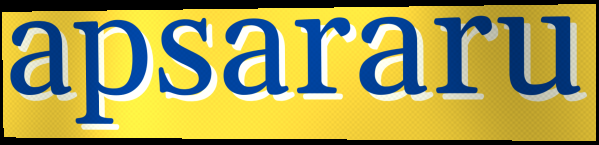
apsararu